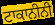
ਟਾਕਾਨੀਨੀ